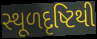
સ્થૂળદૃષ્ટિથી